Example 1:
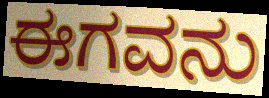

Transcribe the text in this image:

ಈಗವನು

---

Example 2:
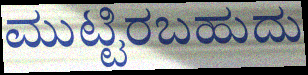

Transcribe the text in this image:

ಮುಟ್ಟಿರಬಹುದು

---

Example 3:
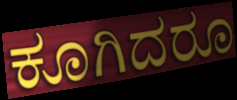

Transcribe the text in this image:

ಕೂಗಿದರೂ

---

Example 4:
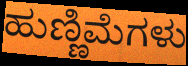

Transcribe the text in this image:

ಹುಣ್ಣಿಮೆಗಳು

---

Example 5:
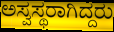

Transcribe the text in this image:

ಅಸ್ವಸ್ಥರಾಗಿದ್ದರು